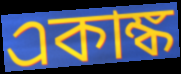
একাঙ্ক